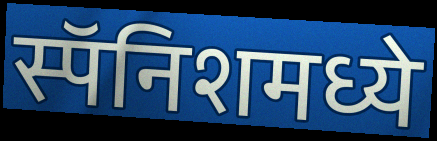
स्पॅनिशमध्ये